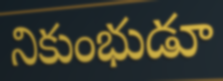
నికుంభుడూ